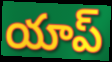
యాప్